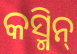
କସ୍ମିନ୍